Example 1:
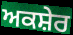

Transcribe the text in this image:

ਅਕਸ਼ੇਰ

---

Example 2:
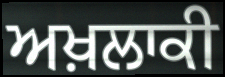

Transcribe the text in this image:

ਅਖ਼ਲਾਕੀ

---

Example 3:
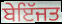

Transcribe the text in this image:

ਬੇਇੱਜਤ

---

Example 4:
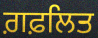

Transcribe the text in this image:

ਗ਼ਫ਼ਲਿਤ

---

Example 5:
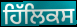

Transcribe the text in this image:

ਹਿੱਲਿਕਸ